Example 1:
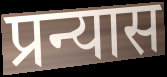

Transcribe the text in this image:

प्रन्यास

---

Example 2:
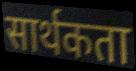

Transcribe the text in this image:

सार्थकता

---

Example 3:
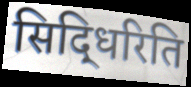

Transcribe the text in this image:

सिद्धिरिति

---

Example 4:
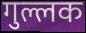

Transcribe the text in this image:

गुल्लक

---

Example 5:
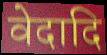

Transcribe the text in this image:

वेदादि